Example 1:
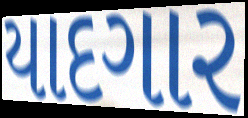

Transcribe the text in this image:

યાદગાર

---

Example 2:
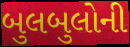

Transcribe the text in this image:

બુલબુલોની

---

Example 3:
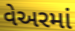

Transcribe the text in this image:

વેઅરમાં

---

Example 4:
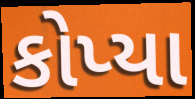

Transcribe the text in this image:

કોપ્યા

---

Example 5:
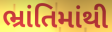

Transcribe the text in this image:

ભ્રાંતિમાંથી